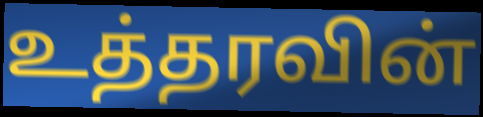
உத்தரவின்